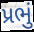
પ્રભું